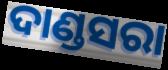
ଦାଣ୍ଡସରା